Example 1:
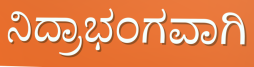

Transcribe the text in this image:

ನಿದ್ರಾಭಂಗವಾಗಿ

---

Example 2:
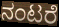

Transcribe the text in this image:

ನಂಟರೆ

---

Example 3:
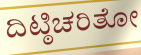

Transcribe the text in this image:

ದಿಟ್ಠಿಚರಿತೋ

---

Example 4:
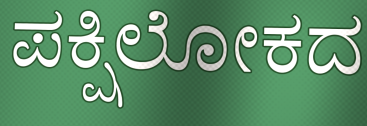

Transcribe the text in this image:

ಪಕ್ಷಿಲೋಕದ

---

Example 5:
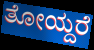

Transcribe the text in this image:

ತೋಯ್ದರೆ